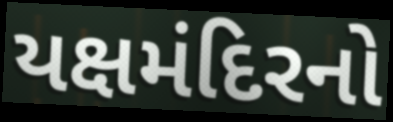
યક્ષમંદિરનો